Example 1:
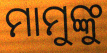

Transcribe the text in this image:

ମାମୁଙ୍କୁ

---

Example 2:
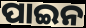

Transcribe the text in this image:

ପାଇନ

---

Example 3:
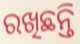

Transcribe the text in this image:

ରଖିଛନ୍ତି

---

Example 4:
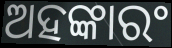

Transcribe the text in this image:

ଅହଙ୍କାରଂ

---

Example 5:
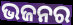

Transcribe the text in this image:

ଭଜନର